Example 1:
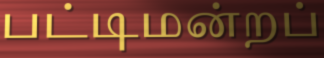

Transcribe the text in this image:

பட்டிமன்றப்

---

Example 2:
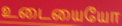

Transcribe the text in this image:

உடையையோ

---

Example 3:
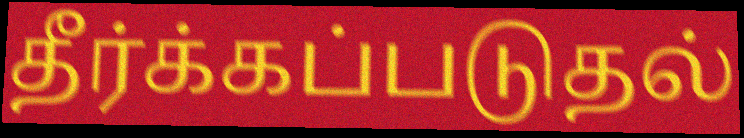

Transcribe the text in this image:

தீர்க்கப்படுதல்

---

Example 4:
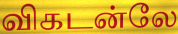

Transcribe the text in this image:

விகடன்லே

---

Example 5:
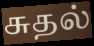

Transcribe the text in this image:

சுதல்